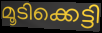
മൂടിക്കെട്ടി